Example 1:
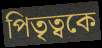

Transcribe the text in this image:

পিতৃত্বকে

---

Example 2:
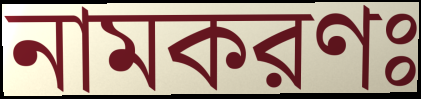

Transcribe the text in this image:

নামকরণঃ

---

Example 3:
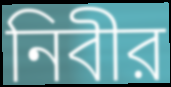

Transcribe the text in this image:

নিবীর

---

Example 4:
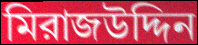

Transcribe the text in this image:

মিরাজউদ্দিন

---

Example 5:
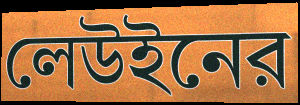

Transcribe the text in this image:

লেউইনের